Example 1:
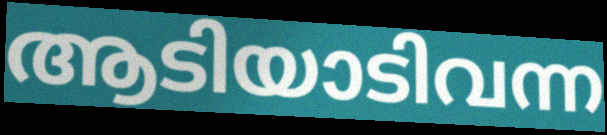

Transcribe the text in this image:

ആടിയാടിവന്ന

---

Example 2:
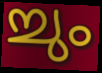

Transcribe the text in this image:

ച്ചും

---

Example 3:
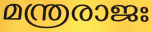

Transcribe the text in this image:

മന്ത്രരാജഃ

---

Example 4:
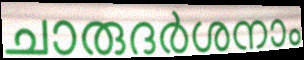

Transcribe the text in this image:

ചാരുദർശനാം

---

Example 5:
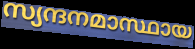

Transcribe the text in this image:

സ്യന്ദനമാസ്ഥായ